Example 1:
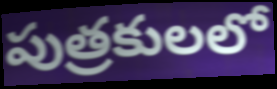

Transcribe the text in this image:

పుత్రకులలో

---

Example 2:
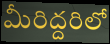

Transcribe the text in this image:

మీరిద్దరిలో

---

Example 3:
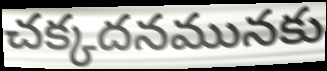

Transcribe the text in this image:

చక్కదనమునకు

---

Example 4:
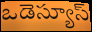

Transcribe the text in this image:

ఒడెస్యూస్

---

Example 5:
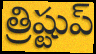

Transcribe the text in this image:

త్రిష్టుప్